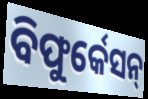
ବିଫୁର୍କେସନ୍